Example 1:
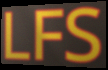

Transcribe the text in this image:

LFS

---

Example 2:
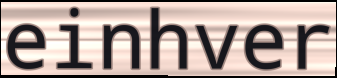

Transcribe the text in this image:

einhver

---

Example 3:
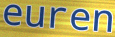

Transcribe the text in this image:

euren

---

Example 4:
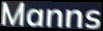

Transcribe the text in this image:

Manns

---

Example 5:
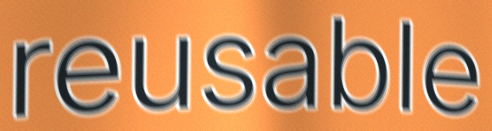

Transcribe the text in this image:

reusable